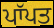
ਪਾੱਪਤ